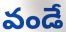
వండే